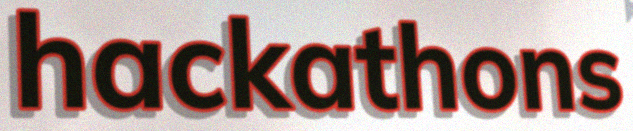
hackathons